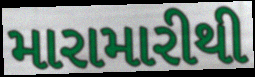
મારામારીથી